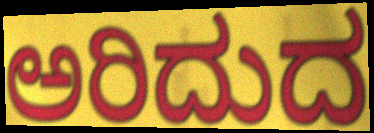
ಅರಿದುದ